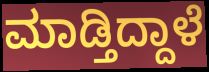
ಮಾಡ್ತಿದ್ದಾಳೆ